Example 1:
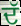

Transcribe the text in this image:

ਦੱ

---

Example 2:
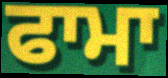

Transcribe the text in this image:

ਫਾਮਾ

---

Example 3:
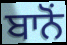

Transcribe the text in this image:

ਬਾਨੋਂ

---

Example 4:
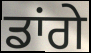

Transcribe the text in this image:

ਡਾਂਗੇ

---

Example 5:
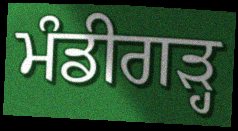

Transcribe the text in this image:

ਮੰਡੀਗੜ੍ਹ